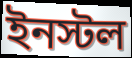
ইনস্টল